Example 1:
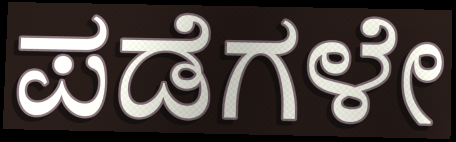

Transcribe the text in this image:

ಪಡೆಗಳೇ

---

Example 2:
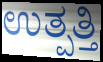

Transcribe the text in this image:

ಉತ್ಪತ್ತಿ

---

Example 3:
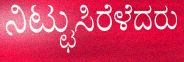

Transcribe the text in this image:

ನಿಟ್ಟುಸಿರೆಳೆದರು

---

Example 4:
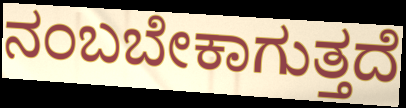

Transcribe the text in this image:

ನಂಬಬೇಕಾಗುತ್ತದೆ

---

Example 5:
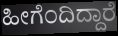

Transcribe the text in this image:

ಹೀಗೆಂದಿದ್ದಾರೆ